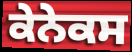
ਕੇਨੇਕਸ